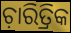
ଚ଼ାରିତ୍ରିକ